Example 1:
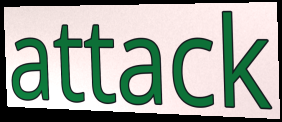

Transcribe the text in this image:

attack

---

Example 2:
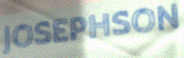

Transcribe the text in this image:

JOSEPHSON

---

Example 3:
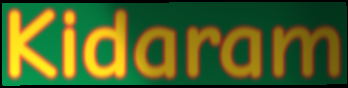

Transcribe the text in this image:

Kidaram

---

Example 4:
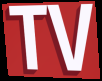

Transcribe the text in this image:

TV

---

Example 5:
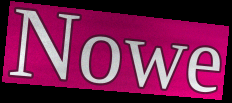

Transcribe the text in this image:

Nowe